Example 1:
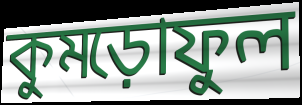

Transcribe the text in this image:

কুমড়োফুল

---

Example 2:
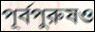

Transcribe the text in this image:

পূর্বপুরুষও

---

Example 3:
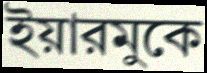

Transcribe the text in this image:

ইয়ারমুকে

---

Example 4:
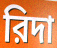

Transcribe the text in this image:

রিদা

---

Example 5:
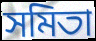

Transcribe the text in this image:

সমিতা